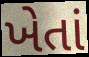
ખેતાં